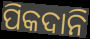
ପିକଦାନି